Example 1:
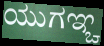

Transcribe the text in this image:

ಯುಗಞ್ಚ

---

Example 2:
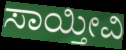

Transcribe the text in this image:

ಸಾಯ್ತೀವಿ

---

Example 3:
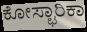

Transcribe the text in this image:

ಕೋಸ್ಟಾರಿಕಾ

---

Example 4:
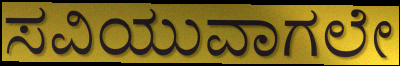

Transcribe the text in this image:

ಸವಿಯುವಾಗಲೇ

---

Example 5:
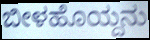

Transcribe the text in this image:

ಬೀಳಹೊಯ್ದನು